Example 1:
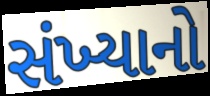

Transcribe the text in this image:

સંખ્યાનો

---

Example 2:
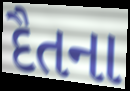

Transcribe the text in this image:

દૈતના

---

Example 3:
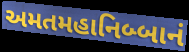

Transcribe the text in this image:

અમતમહાનિબ્બાનં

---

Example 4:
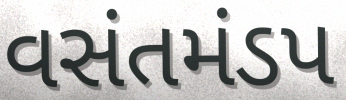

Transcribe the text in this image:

વસંતમંડપ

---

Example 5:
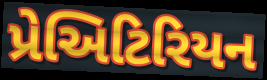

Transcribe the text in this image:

પ્રેઅિટિરિયન